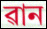
ৱান